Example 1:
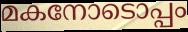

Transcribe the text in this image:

മകനോടൊപ്പം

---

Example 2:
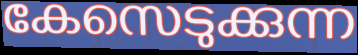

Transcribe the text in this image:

കേസെടുക്കുന്ന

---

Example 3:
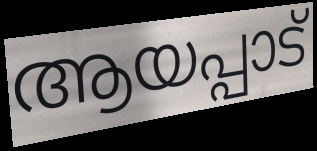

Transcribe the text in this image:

ആയപ്പാട്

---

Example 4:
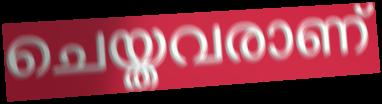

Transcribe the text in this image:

ചെയ്തവരാണ്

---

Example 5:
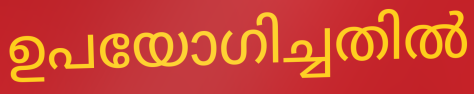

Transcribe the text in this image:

ഉപയോഗിച്ചതിൽ